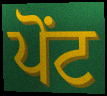
ਪੋਂਟ